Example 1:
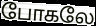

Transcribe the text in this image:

போகலே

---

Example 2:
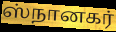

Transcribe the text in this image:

ஸ்நானகர்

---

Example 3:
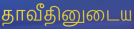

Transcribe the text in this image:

தாவீதினுடைய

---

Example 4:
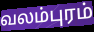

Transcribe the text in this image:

வலம்புரம்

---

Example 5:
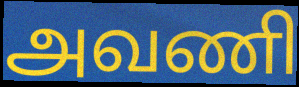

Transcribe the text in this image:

அவணி